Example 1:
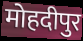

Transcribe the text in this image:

मोहदीपुर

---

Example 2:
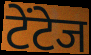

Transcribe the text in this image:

टेंटेज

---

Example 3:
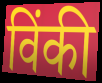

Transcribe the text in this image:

विंकी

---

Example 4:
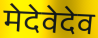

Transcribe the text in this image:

मेदेवेदेव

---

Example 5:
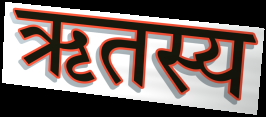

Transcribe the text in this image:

ॠतस्य